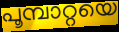
പൂമ്പാറ്റയെ